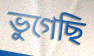
ভুগেছি